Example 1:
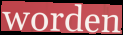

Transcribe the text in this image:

worden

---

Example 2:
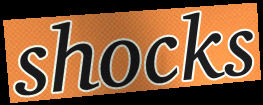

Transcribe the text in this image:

shocks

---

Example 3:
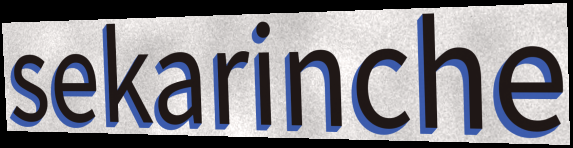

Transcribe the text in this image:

sekarinche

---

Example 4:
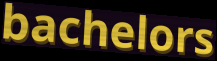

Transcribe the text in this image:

bachelors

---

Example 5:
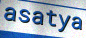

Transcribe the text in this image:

asatya